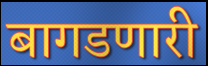
बागडणारी